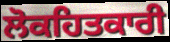
ਲੋਕਹਿਤਕਾਰੀ